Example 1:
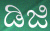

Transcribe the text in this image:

ಡಿಜಿ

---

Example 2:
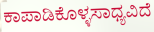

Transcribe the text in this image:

ಕಾಪಾಡಿಕೊಳ್ಳಸಾಧ್ಯವಿದೆ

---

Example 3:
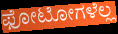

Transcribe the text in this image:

ಫೋಟೋಗಳೆಲ್ಲ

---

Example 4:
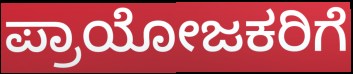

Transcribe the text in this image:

ಪ್ರಾಯೋಜಕರಿಗೆ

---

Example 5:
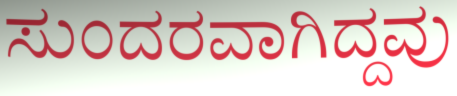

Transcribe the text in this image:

ಸುಂದರವಾಗಿದ್ದವು